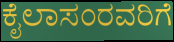
ಕೈಲಾಸಂರವರಿಗೆ